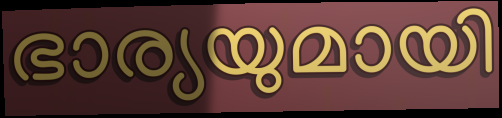
ഭാര്യയുമായി